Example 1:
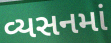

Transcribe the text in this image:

વ્યસનમાં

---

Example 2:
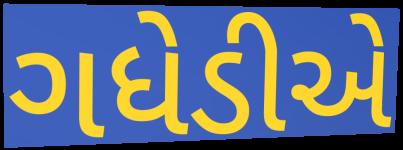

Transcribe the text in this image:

ગધેડીએ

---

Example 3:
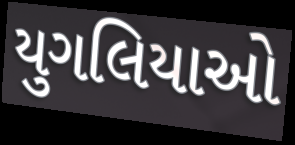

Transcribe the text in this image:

યુગલિયાઓ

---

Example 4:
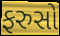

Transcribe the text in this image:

ફરુસો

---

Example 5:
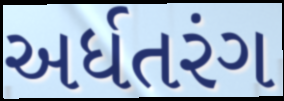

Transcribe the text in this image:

અર્ધતરંગ